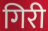
गिरी